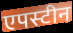
एपस्टीन